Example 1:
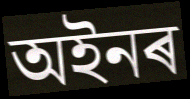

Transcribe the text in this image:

অইনৰ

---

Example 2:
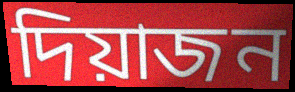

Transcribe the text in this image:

দিয়াজন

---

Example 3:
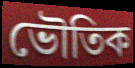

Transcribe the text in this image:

ভৌতিক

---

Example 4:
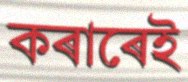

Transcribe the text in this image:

কৰাৰেই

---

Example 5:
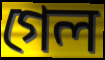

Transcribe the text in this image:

গেল